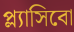
প্ল্যাসিবো